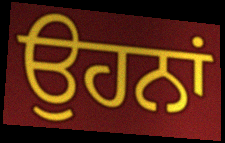
ਉਹਨਾਂ